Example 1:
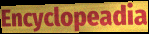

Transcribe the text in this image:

Encyclopeadia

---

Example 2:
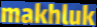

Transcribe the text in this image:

makhluk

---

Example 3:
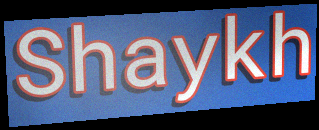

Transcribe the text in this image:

Shaykh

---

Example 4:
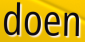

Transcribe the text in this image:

doen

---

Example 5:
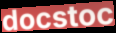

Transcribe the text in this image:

docstoc